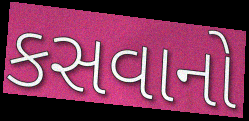
કસવાનો